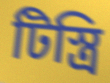
টিস্ত্রি